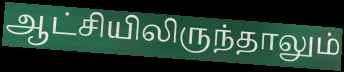
ஆட்சியிலிருந்தாலும்